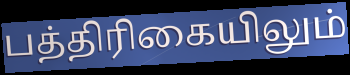
பத்திரிகையிலும்